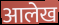
आलेख